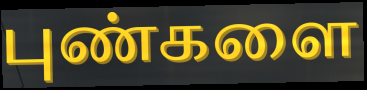
புண்களை